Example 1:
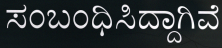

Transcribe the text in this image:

ಸಂಬಂಧಿಸಿದ್ದಾಗಿವೆ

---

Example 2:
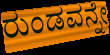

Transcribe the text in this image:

ರುಂಡವನ್ನೇ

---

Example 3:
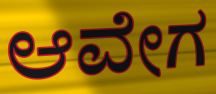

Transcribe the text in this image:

ಆವೇಗ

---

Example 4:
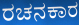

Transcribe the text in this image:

ರಚನಕಾರ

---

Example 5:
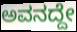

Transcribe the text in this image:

ಅವನದ್ದೇ